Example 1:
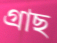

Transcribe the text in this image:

গ্ৰাছ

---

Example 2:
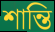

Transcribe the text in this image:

শান্তি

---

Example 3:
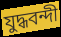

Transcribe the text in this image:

যুদ্ধবন্দী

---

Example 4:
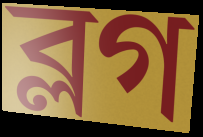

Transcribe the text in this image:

ব্লগ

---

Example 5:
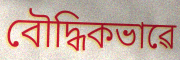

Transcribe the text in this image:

বৌদ্ধিকভাৱে